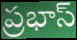
ప్రభాస్